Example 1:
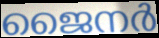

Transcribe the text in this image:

ജൈനർ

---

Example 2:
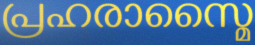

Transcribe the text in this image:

പ്രഹരാസ്മൈ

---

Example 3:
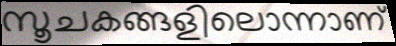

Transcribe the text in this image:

സൂചകങ്ങളിലൊന്നാണ്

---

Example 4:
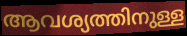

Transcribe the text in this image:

ആവശ്യത്തിനുള്ള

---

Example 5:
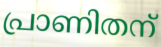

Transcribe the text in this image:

പ്രാണിതന്